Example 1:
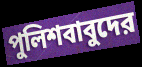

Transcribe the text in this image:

পুলিশবাবুদের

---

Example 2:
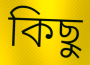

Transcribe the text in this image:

কিছু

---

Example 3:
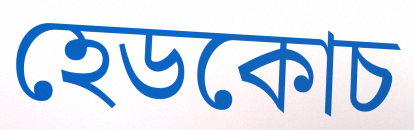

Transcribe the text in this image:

হেডকোচ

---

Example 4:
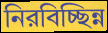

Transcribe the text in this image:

নিরবিচ্ছিন্ন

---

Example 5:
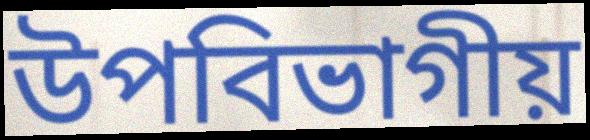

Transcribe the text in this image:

উপবিভাগীয়